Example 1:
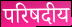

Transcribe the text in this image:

परिषदीय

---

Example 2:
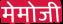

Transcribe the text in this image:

मेमोजी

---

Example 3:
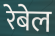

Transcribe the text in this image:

रेबेल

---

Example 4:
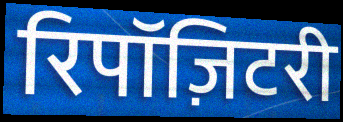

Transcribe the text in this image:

रिपॉज़िटरी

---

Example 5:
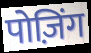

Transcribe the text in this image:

पोज़िंग